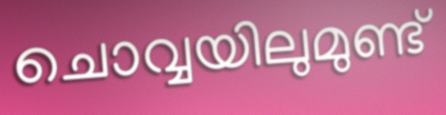
ചൊവ്വയിലുമുണ്ട്